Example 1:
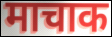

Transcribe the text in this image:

माचाक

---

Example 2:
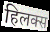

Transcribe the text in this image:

हिलक्स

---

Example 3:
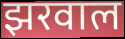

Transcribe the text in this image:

झरवाल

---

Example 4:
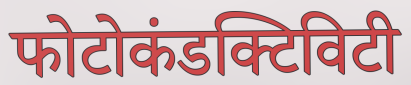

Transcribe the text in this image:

फोटोकंडक्टिविटी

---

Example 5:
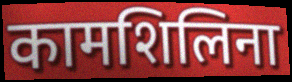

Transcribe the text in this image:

कामशिलिना